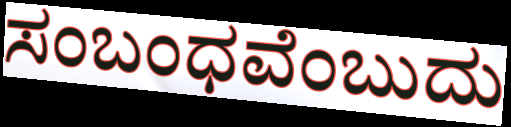
ಸಂಬಂಧವೆಂಬುದು